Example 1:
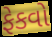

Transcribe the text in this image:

ફેકવો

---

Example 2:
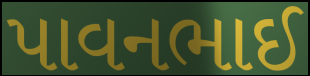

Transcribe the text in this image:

પાવનભાઈ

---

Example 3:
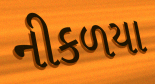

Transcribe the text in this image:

નીકળયા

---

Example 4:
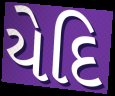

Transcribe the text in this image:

યેદિ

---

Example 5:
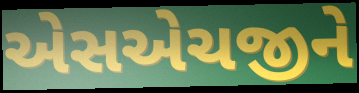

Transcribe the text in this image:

એસએચજીને